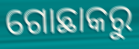
ଗୋଛାକରୁ